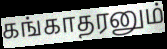
கங்காதரனும்